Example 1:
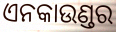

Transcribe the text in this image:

ଏନକାଉଣ୍ଡର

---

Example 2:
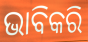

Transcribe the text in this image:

ଭାବିକରି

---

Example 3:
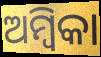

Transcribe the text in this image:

ଅମ୍ବିକା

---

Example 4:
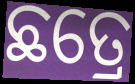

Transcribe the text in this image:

ଛତ୍ରେ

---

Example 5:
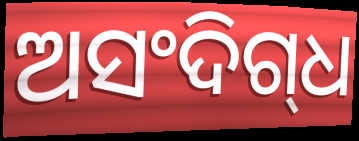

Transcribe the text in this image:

ଅସଂଦିଗ୍‌ଧ